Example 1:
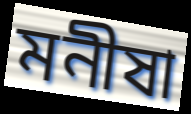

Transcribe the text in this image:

মনীষা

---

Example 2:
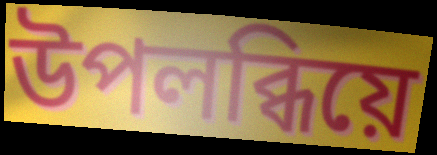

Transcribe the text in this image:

উপলব্ধিয়ে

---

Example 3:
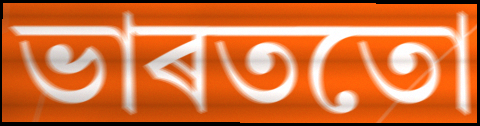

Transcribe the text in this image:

ভাৰততো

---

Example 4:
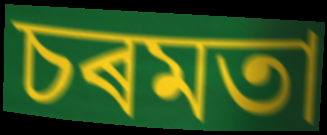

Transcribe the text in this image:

চৰমতা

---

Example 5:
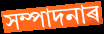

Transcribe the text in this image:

সম্পাদনাৰ